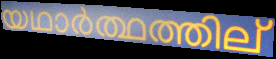
യഥാർത്ഥത്തില്